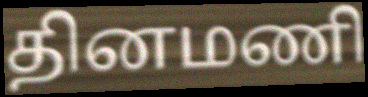
தினமணி